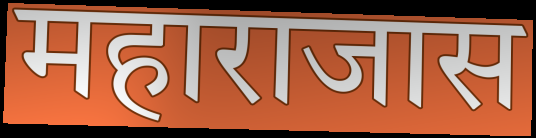
महाराजास